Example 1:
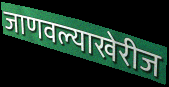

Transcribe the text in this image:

जाणवल्याखेरीज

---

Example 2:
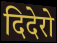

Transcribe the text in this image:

दिदेरो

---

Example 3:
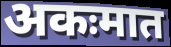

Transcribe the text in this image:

अकःमात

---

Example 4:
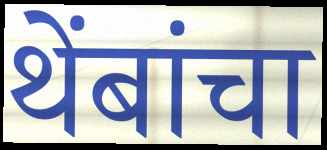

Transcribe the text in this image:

थेंबांचा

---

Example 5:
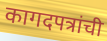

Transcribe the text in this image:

कागदपत्रांची